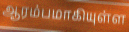
ஆரம்பமாகியுள்ள